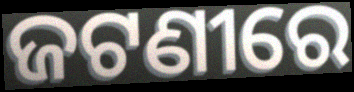
ଜଟଣୀରେ